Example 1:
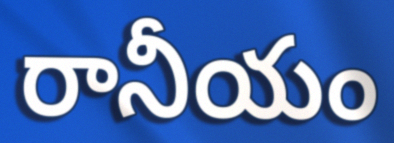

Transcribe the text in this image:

రానీయం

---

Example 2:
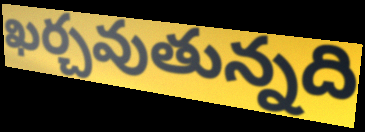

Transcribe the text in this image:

ఖర్చవుతున్నది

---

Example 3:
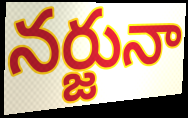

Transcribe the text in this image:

నర్జునా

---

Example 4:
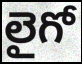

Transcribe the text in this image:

లైగో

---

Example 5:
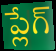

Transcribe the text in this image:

ప్లేగ్